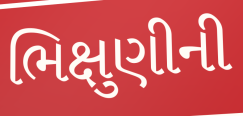
ભિક્ષુણીની